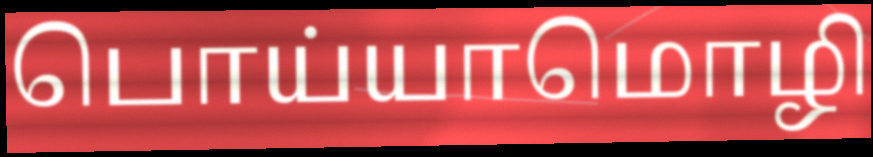
பொய்யாமொழி